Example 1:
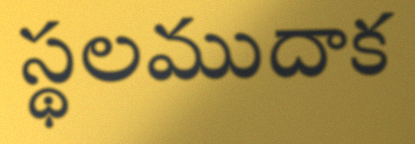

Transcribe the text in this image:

స్థలముదాక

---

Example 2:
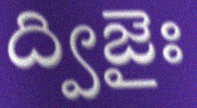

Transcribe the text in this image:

ద్విజైః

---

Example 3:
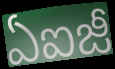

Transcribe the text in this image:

ఏఐజీ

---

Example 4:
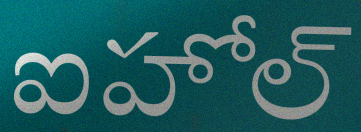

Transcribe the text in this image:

ఐహోల్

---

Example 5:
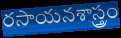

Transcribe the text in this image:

రసాయనశాస్త్రం